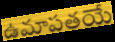
ఉమాపతయే